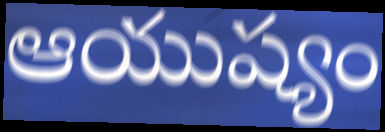
ఆయుష్యం